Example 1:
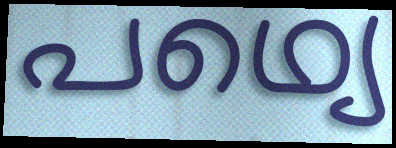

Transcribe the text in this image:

പഥ്യെ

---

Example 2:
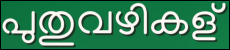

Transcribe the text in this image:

പുതുവഴികള്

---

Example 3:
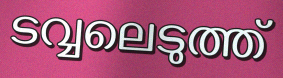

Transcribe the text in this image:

ടവ്വലെടുത്ത്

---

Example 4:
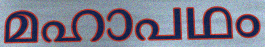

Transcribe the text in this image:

മഹാപഥം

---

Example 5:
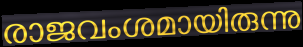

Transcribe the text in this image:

രാജവംശമായിരുന്നു